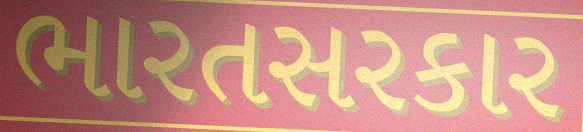
ભારતસરકાર